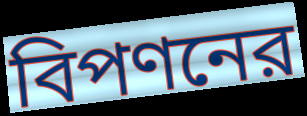
বিপণনের